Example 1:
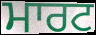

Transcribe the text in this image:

ਮਾਰਟ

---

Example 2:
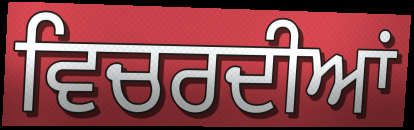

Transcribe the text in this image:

ਵਿਚਰਦੀਆਂ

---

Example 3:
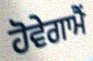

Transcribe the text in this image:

ਹੋਵੇਗਾਮੈਂ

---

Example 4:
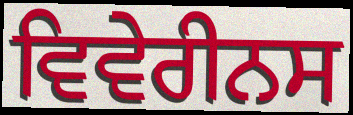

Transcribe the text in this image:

ਵਿਵੇਰੀਨਸ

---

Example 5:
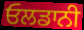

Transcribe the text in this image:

ਓਲਡਾਨੀ